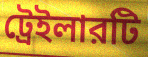
ট্রেইলারটি